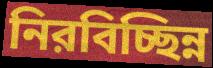
নিরবিচ্ছিন্ন